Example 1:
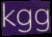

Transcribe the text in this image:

kgg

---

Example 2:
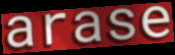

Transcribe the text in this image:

arase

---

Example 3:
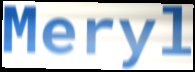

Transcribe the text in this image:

Meryl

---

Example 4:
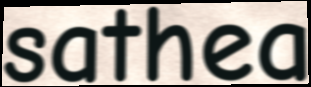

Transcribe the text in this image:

sathea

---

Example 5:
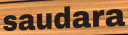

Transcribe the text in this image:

saudara